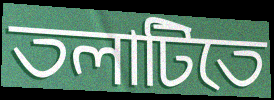
তলাটিতে